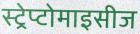
स्ट्रेप्टोमाइसीज